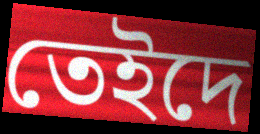
তেইদে